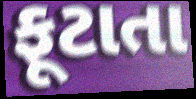
ફૂટાતા